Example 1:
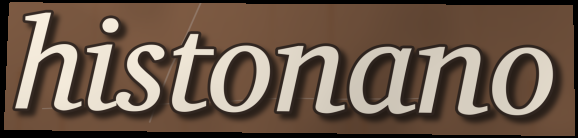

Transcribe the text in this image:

histonano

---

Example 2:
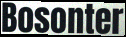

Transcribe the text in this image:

Bosonter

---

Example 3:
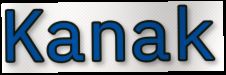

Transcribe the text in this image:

Kanak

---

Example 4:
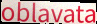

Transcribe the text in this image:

oblavata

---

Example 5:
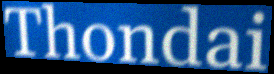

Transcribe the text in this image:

Thondai